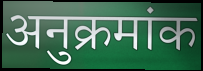
अनुक्रमांक